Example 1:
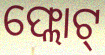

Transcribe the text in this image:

ଫ୍ଲୋଟ୍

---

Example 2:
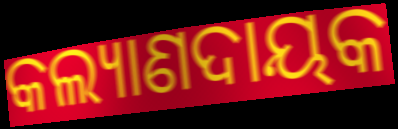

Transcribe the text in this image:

କଲ୍ୟାଣଦାୟକ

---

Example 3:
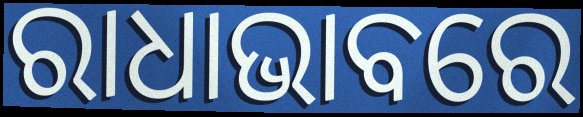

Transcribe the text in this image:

ରାଧାଭାବରେ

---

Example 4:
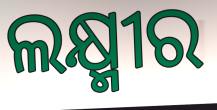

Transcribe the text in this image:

ଲକ୍ଷ୍ମୀର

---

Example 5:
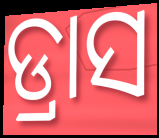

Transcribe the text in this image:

ଡ୍ରାସ